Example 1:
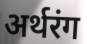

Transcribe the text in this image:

अर्थरंग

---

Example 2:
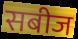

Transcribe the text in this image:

सबीज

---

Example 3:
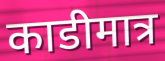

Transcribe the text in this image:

काडीमात्र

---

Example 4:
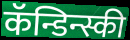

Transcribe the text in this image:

कॅन्डिन्स्की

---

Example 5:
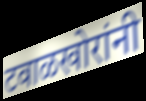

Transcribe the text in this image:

टवाळखोरांनी